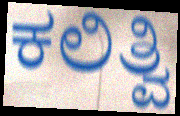
ಕಲಿತ್ವಿ